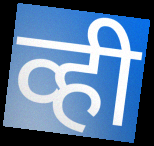
व्‍ही